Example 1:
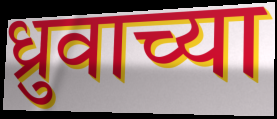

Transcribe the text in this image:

ध्रुवाच्या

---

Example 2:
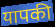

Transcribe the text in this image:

यापकी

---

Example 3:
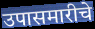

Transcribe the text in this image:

उपासमारीचे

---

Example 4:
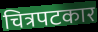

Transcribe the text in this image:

चित्रपटकार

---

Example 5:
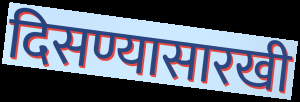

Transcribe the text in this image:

दिसण्यासारखी